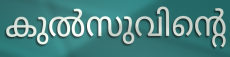
കുൽസുവിന്റെ